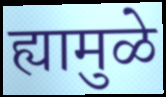
ह्यामुळे